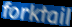
forktail